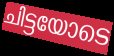
ചിട്ടയോടെ